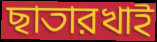
ছাতারখাই